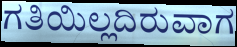
ಗತಿಯಿಲ್ಲದಿರುವಾಗ